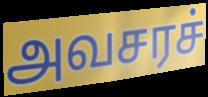
அவசரச்